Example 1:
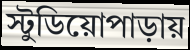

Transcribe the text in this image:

স্টুডিয়োপাড়ায়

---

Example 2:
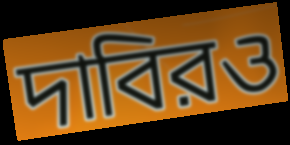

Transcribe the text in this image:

দাবিরও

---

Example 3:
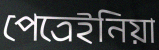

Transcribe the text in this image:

পেত্রেইনিয়া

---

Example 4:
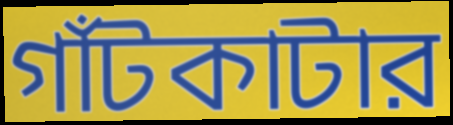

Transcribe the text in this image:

গাঁটকাটার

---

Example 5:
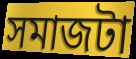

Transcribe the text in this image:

সমাজটা